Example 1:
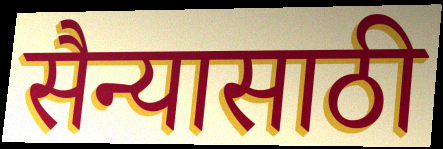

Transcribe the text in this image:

सैन्यासाठी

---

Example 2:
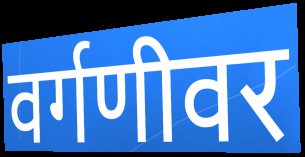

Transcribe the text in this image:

वर्गणीवर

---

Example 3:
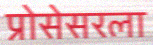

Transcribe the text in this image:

प्रोसेसरला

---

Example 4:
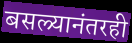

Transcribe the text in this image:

बसल्यानंतरही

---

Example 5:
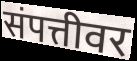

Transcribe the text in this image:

संपत्तीवर